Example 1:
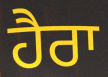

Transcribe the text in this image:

ਹੈਰਾ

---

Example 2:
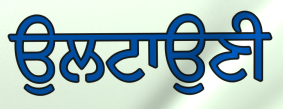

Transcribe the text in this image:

ਉਲਟਾਉਣੀ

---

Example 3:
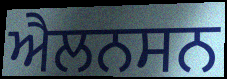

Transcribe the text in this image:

ਐਲਨਸਨ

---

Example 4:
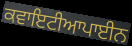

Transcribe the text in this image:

ਕਵਾਇਟੀਆਪਾਈਨ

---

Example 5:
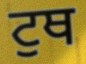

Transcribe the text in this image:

ਟੁਥ